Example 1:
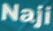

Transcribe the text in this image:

Naji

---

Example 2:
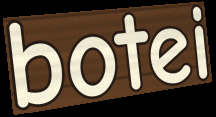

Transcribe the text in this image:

botei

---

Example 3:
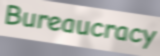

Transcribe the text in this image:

Bureaucracy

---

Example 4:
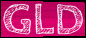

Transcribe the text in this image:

GLD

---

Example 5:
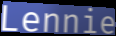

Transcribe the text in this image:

Lennie